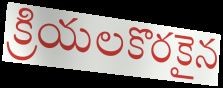
క్రియలకొరకైన